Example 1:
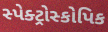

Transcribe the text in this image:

સ્પેક્ટ્રોસ્કોપિક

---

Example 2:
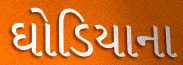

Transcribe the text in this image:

ઘોડિયાના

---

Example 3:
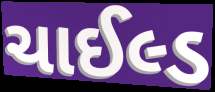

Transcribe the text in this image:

ચાઈલ્ડ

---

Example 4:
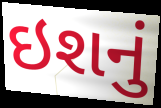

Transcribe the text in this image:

ઇશનું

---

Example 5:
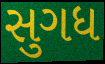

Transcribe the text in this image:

સુગધ